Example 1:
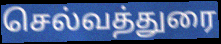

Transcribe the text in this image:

செல்வத்துரை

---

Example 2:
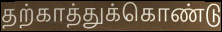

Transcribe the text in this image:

தற்காத்துக்கொண்டு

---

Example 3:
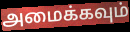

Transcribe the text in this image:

அமைக்கவும்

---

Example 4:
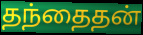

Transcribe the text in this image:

தந்தைதன்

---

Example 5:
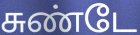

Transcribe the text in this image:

சுண்டே